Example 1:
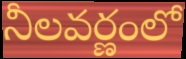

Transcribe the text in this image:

నీలవర్ణంలో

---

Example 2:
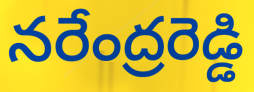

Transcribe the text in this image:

నరేంద్రరెడ్డి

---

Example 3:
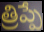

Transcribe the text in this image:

త్రిప్పే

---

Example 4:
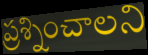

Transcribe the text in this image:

ప్రశ్నించాలని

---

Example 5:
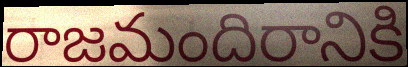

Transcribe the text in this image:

రాజమందిరానికి